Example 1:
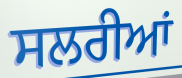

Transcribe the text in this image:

ਸਲਰੀਆਂ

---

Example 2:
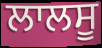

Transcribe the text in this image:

ਲਾਲਸੂ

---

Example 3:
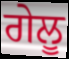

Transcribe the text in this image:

ਗੇਲੂ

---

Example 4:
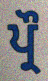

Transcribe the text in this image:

ਪ੍ਰੌ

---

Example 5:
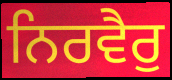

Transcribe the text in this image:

ਨਿਰਵੈਰੁ